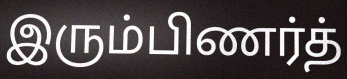
இரும்பிணர்த்